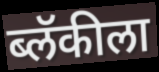
ब्लॅकीला